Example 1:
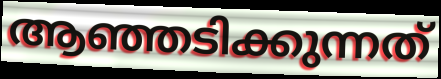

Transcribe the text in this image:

ആഞ്ഞടിക്കുന്നത്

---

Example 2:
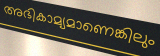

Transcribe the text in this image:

അഭികാമ്യമാണെങ്കിലും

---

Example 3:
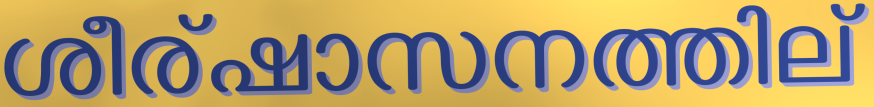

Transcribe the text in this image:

ശീര്ഷാസനത്തില്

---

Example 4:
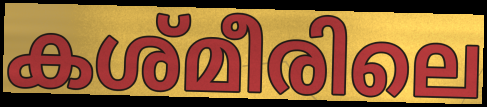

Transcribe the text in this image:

കശ്മീരിലെ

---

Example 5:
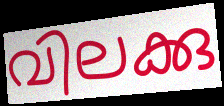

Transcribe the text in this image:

വിലക്കു